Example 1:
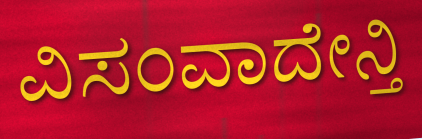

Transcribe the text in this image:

ವಿಸಂವಾದೇನ್ತಿ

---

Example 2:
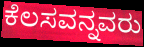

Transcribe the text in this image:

ಕೆಲಸವನ್ನವರು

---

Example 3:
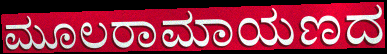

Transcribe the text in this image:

ಮೂಲರಾಮಾಯಣದ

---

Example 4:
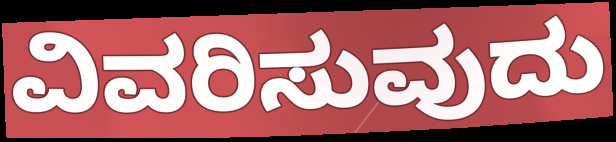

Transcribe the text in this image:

ವಿವರಿಸುವುದು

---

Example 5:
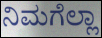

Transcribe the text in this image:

ನಿಮಗೆಲ್ಲಾ